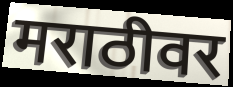
मराठीवर